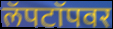
लॅपटॉपवर